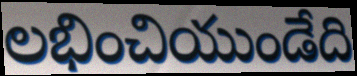
లభించియుండేది